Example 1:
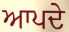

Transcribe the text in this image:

ਆਪਦੇ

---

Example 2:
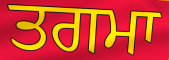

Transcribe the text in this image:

ਤਗਮਾ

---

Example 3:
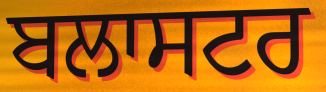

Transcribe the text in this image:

ਬਲਾਸਟਰ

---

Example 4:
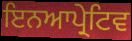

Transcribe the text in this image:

ਇਨਆਪ੍ਰੇਟਿਵ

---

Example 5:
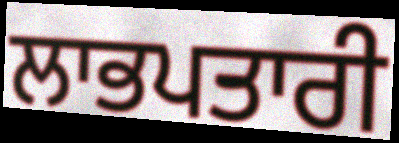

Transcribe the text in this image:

ਲਾਭਪਤਾਰੀ